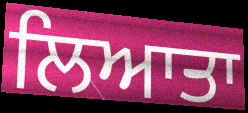
ਲਿਆਤਾ